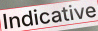
Indicative